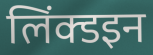
लिंक्‍डइन